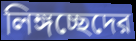
লিঙ্গচ্ছেদের